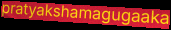
pratyakshamagugaaka